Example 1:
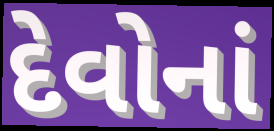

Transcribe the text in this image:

દેવોનાં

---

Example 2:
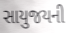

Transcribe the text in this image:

સાયુજયની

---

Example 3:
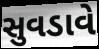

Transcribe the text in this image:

સુવડાવે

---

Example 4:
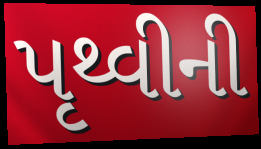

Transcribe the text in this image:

પૃથ્વીની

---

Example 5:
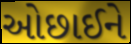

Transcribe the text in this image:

ઓછાઈને